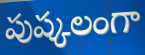
పుష్కలంగా